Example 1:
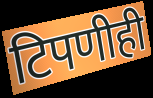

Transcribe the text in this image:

टिपणीही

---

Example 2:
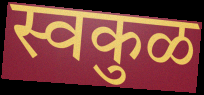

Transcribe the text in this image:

स्वकुळ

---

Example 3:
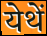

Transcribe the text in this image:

येथें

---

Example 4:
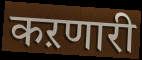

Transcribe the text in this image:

कऱणारी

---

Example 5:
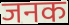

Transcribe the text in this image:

जनक